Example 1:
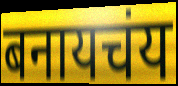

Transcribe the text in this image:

बनायचंय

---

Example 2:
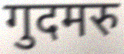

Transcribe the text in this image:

गुदमरु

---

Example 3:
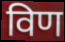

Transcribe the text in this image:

विण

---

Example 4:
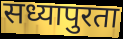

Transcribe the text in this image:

सध्यापुरता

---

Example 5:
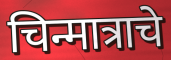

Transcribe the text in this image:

चिन्मात्राचे